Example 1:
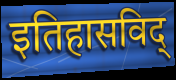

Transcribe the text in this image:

इतिहासविद्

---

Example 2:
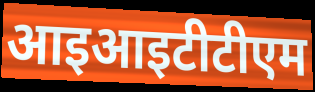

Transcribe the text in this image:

आइआइटीटीएम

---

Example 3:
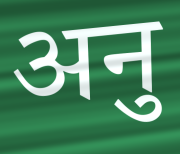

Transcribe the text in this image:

अनु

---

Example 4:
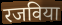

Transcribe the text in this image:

रजविया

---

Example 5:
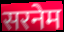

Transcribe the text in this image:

सरनेम